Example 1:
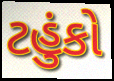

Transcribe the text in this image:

ટહુંકો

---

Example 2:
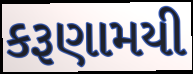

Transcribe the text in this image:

કરૂણામયી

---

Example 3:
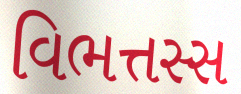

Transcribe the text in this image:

વિભત્તસ્સ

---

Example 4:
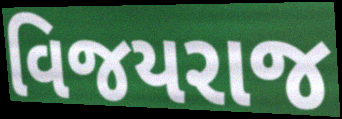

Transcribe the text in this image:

વિજયરાજ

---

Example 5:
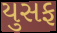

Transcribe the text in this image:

યુસફ